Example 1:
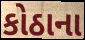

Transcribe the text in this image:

કોઠાના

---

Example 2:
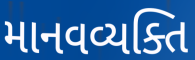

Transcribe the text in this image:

માનવવ્યક્તિ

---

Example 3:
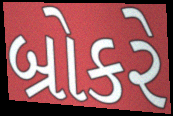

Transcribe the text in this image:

બ્રોકરે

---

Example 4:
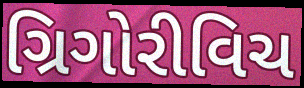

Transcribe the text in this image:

ગ્રિગોરીવિચ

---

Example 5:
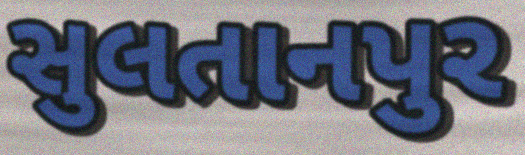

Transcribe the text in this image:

સુલતાનપુર